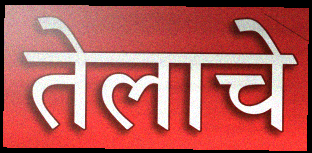
तेलाचे